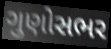
ગુણોસભર